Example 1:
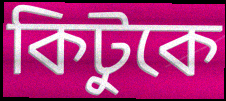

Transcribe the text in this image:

কিটুকে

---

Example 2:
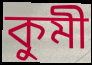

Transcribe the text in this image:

কুমী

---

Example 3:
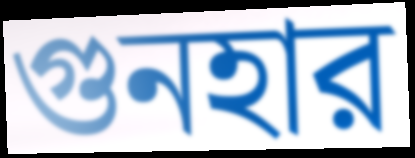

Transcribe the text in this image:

গুনহার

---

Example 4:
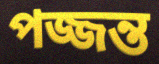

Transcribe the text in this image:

পজ্জন্ত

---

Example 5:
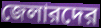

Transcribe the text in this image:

জেলারদের